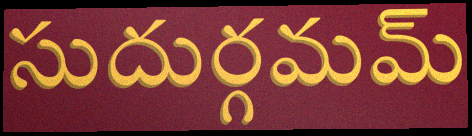
సుదుర్గమమ్